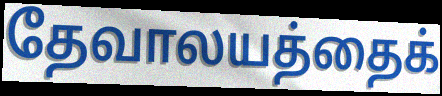
தேவாலயத்தைக்